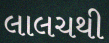
લાલચથી